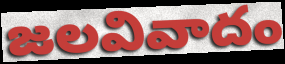
జలవివాదం